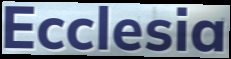
Ecclesia